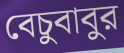
বেচুবাবুর